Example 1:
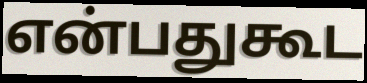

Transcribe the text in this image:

என்பதுகூட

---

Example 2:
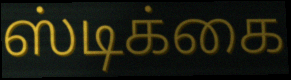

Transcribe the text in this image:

ஸ்டிக்கை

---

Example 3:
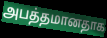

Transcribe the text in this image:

அபத்தமானதாக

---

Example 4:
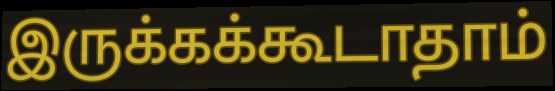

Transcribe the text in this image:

இருக்கக்கூடாதாம்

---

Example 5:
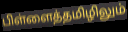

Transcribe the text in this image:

பிள்ளைத்தமிழிலும்